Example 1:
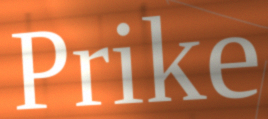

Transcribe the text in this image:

Prike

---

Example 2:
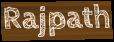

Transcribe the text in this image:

Rajpath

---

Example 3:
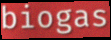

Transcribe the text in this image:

biogas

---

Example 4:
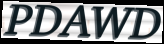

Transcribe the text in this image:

PDAWD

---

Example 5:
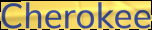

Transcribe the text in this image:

Cherokee